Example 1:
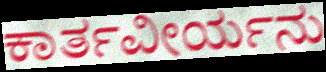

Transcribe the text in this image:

ಕಾರ್ತವೀರ್ಯನು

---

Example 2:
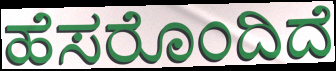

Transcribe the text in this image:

ಹೆಸರೊಂದಿದೆ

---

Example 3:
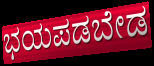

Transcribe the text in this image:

ಭಯಪಡಬೇಡ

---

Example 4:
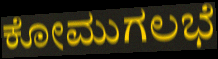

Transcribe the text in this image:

ಕೋಮುಗಲಭೆ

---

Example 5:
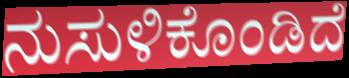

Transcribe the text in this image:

ನುಸುಳಿಕೊಂಡಿದೆ